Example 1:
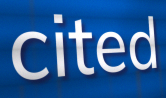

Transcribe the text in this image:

cited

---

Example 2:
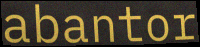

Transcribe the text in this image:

abantor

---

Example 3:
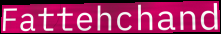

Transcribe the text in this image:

Fattehchand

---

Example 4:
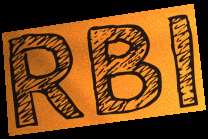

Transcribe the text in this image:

RBI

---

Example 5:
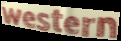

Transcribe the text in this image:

western